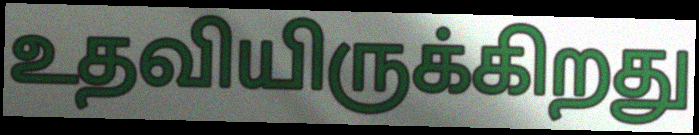
உதவியிருக்கிறது